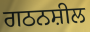
ਗਠਨਸ਼ੀਲ